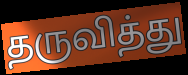
தருவித்து